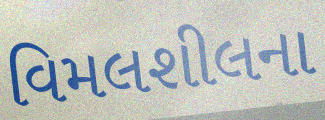
વિમલશીલના